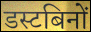
डस्टबिनों